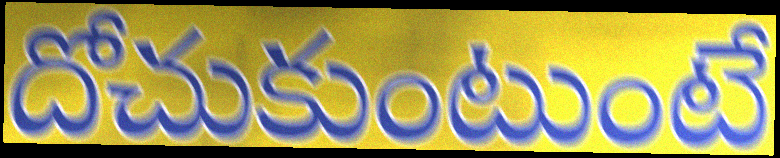
దోచుకుంటుంటే